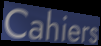
Cahiers